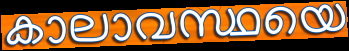
കാലാവസ്ഥയെ